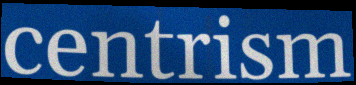
centrism